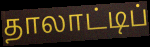
தாலாட்டிப்